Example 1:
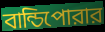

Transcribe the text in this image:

বান্ডিপোরার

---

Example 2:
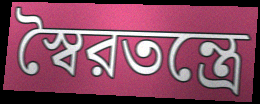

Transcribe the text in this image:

স্বৈরতন্ত্রে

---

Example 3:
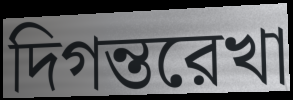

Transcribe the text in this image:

দিগন্তরেখা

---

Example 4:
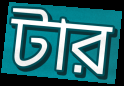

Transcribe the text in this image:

টার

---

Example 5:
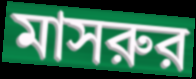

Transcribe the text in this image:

মাসরুর